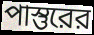
পাস্তুরের